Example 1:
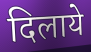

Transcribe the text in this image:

दिलाये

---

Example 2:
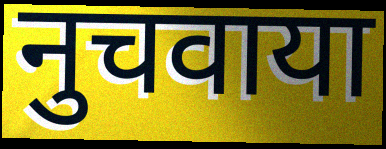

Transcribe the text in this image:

नुचवाया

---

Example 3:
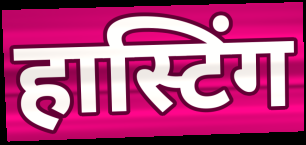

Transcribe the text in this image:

हास्टिंग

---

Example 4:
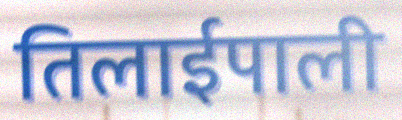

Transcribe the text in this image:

तिलाईपाली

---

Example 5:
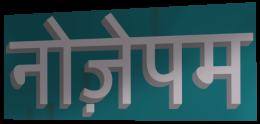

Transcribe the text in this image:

नोज़ेपम